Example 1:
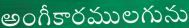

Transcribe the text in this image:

అంగీకారములగును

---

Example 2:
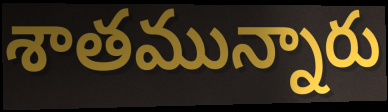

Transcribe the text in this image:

శాతమున్నారు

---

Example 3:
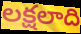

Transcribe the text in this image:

లక్షలాది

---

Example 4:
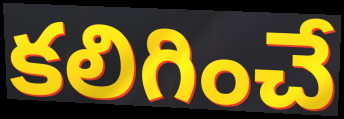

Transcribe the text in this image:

కలిగించే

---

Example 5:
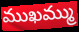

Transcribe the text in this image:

ముఖమ్ము